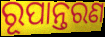
ରୂପାନ୍ତରଣ